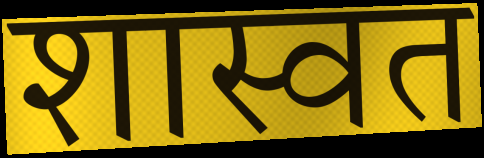
शास्वत